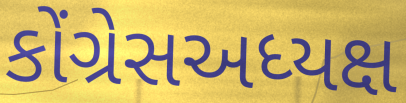
કોંગ્રેસઅધ્યક્ષ